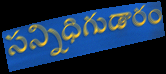
సన్నిధిగుడారం